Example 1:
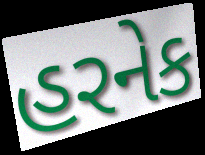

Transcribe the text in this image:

હરનેક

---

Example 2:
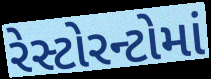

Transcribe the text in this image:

રેસ્ટોરન્ટોમાં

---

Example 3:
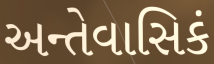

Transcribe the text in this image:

અન્તેવાસિકં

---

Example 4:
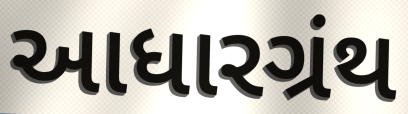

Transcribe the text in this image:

આધારગ્રંથ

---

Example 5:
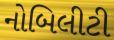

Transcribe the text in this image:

નોબિલીટી